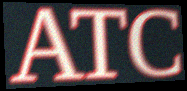
ATC